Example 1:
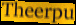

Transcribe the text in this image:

Theerpu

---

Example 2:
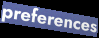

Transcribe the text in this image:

preferences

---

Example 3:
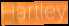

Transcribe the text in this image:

Hartley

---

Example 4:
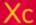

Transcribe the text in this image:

Xc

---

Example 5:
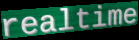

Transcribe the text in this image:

realtime